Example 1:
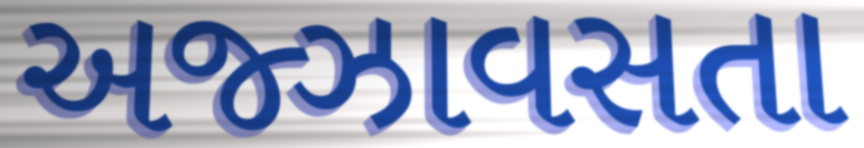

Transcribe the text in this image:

અજ્ઝાવસતા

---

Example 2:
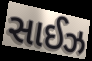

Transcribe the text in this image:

સાઈઝ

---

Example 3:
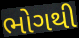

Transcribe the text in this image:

ભોગથી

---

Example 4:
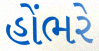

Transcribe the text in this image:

હોંભરે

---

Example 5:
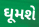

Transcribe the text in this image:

ઘૂમશે